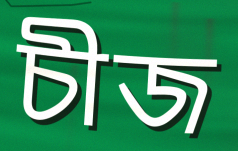
চীজ